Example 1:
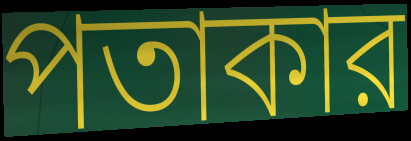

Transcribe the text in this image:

পতাকার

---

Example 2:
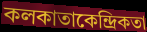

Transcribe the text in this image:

কলকাতাকেন্দ্রিকতা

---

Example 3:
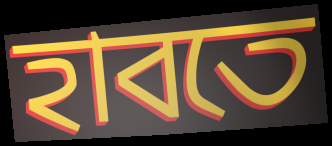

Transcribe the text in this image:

হাবতে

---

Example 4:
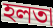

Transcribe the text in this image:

হলতা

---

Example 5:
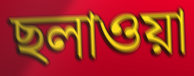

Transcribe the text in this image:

ছলাওয়া